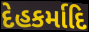
દેહકર્માદિ